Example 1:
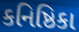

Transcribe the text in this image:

કનિષ્ઠિકા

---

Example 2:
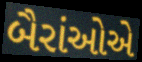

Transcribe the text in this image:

બૈરાંઓએ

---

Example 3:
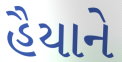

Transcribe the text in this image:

હૈયાને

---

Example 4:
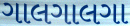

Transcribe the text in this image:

ગાલગાલગા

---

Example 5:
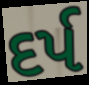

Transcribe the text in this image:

દર્પ